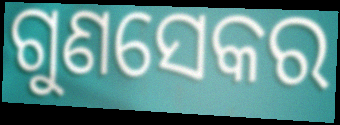
ଗୁଣସେକର